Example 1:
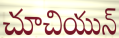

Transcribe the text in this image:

చూచియున్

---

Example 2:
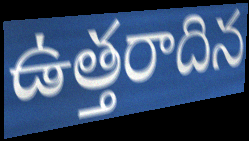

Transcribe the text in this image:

ఉత్తరాదిన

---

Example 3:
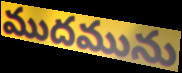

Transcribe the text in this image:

ముదమును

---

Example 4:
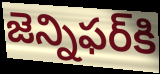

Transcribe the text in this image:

జెన్నిఫర్‌కి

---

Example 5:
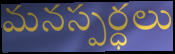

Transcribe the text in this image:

మనస్పర్ధలు